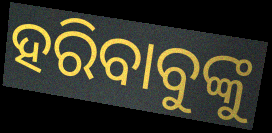
ହରିବାବୁଙ୍କୁ